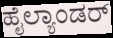
ಹೈಲ್ಯಾಂಡರ್